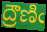
ద్రౌణిఁ